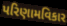
પરિણામવિકાર